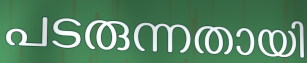
പടരുന്നതായി